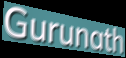
Gurunath